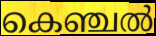
കെഞ്ചൽ